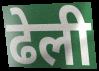
ढेली